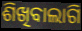
ଶିଖିବାଲାଗି